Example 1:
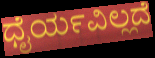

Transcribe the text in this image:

ಧೈರ್ಯವಿಲ್ಲದೆ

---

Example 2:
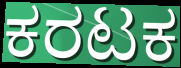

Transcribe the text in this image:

ಕರಟಕ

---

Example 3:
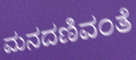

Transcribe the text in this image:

ಮನದಣಿವಂತೆ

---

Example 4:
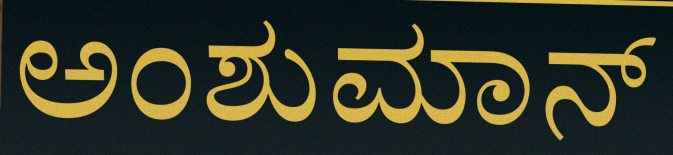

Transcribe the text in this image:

ಅಂಶುಮಾನ್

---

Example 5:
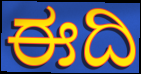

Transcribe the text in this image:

ಈದಿ